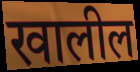
खालील